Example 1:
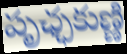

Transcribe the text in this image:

పృఛ్ఛకుణ్ణి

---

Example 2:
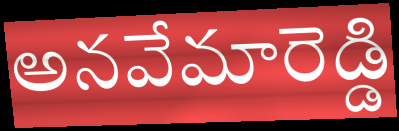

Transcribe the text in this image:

అనవేమారెడ్డి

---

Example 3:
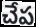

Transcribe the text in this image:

చేప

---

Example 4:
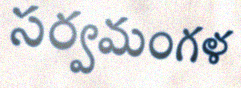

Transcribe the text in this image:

సర్వమంగళ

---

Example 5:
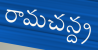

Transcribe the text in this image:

రామచన్ద్ర